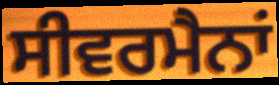
ਸੀਵਰਮੈਨਾਂ